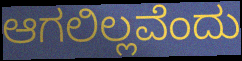
ಆಗಲಿಲ್ಲವೆಂದು